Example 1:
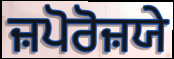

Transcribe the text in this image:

ਜ਼ਪੋਰੋਜ਼ਯੇ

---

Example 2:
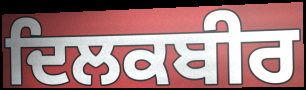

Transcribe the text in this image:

ਦਿਲਕਬੀਰ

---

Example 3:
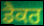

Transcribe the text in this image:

ਡੈਕਰ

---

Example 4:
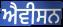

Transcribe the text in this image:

ਐਵੀਸਨ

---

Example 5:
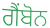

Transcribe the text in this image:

ਗੈਂਬੋਨ